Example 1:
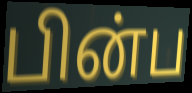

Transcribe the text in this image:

பின்ப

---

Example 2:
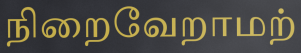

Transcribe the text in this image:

நிறைவேறாமற்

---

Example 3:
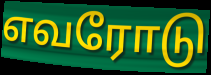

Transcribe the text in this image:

எவரோடு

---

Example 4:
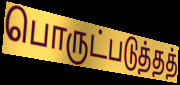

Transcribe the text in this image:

பொருட்படுத்தத்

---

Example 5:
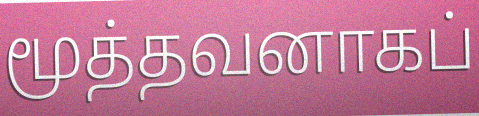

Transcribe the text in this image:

மூத்தவனாகப்